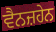
ਵੈਨਜ਼ਹੇਨ